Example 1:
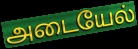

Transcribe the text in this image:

அடையேல்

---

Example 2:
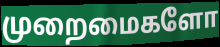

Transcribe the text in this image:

முறைமைகளோ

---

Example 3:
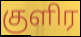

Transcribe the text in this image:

குளிர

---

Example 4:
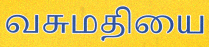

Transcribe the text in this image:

வசுமதியை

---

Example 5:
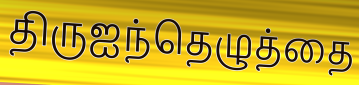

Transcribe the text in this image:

திருஐந்தெழுத்தை